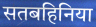
सतबहिनिया